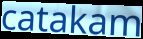
catakam